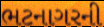
ભટનાગરની